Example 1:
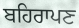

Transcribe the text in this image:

ਬਹਿਰਾਪਣ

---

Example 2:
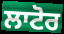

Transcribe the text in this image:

ਲਾਟੋਰ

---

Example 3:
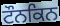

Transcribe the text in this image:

ਟੌਨਕਿਨ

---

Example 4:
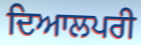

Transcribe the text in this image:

ਦਿਆਲਪਰੀ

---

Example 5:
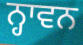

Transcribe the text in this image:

ਨ੍ਹਾਵਨ